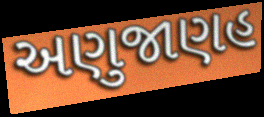
અણુજાણહ